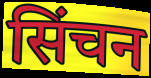
सिंचन